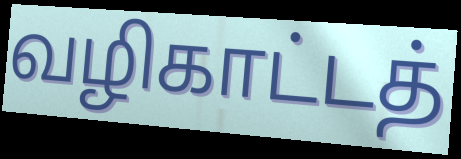
வழிகாட்டத்